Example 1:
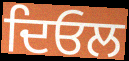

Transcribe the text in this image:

ਦਿਓਲ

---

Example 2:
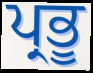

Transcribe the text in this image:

ਪ੍ਰਭੂ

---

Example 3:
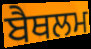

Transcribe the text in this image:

ਬੈਥਲਮ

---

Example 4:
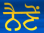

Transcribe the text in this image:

ਨੈਣੋਂ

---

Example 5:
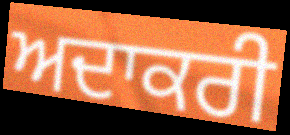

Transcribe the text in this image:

ਅਦਾਕਰੀ